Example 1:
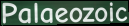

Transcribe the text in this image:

Palaeozoic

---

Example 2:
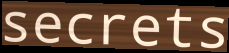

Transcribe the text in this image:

secrets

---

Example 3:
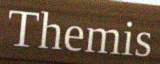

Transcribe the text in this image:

Themis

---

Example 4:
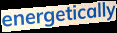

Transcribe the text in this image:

energetically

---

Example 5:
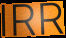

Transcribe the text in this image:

IRR